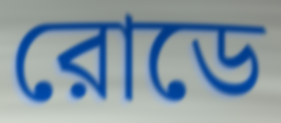
রোডে